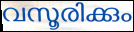
വസൂരിക്കും